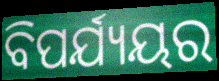
ବିପର୍ଯ୍ଯୟର